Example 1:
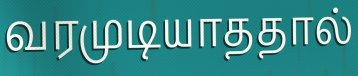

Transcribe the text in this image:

வரமுடியாததால்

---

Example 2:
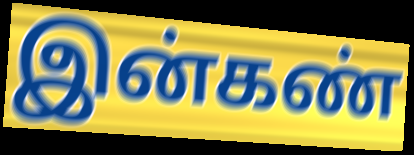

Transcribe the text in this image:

இன்கண்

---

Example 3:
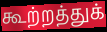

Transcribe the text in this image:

கூற்றத்துக்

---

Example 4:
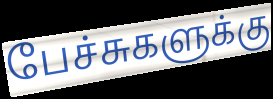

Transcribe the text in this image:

பேச்சுகளுக்கு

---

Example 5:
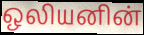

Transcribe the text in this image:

ஒலியனின்